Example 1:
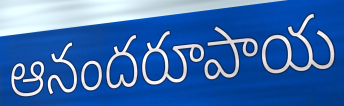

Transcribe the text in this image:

ఆనందరూపాయ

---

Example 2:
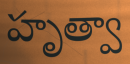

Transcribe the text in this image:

హృత్వా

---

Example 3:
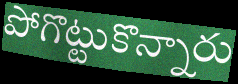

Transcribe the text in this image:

పోగొట్టుకొన్నారు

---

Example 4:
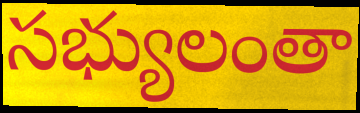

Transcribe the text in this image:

సభ్యులంతా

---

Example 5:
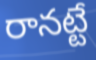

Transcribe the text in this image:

రానట్టే